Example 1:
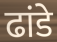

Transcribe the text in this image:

ढांडे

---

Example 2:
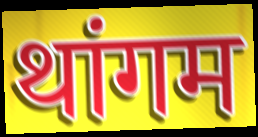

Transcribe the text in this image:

थांगम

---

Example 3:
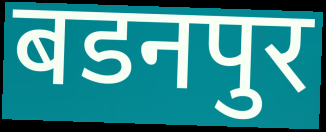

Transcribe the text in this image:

बडनपुर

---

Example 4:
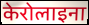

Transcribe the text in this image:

केरोलाइना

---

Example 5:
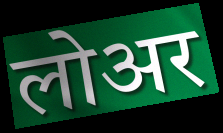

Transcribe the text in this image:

लोअर